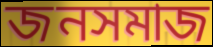
জনসমাজ